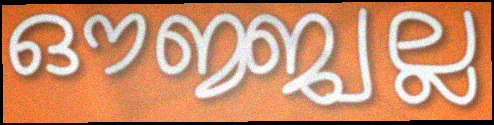
ഔജ്ജ്വല്ല